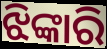
ଝିଙ୍କାରି